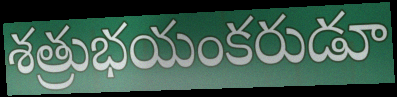
శత్రుభయంకరుడూ